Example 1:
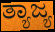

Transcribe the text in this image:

ತ್ಯಾಜ್ಯ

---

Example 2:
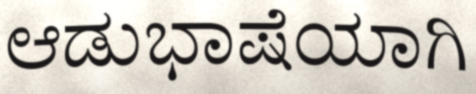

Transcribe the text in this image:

ಆಡುಭಾಷೆಯಾಗಿ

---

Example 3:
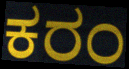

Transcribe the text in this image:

ಕರಂ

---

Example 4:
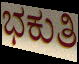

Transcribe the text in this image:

ಭಕುತಿ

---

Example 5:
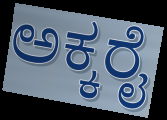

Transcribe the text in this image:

ಅಕ್ಕರೈ